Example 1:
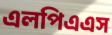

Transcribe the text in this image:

এলপিএএস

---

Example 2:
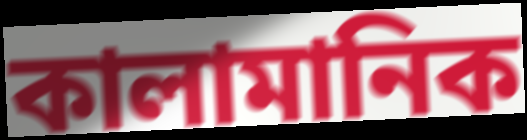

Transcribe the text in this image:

কালামানিক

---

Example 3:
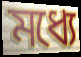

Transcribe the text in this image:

মধ্যে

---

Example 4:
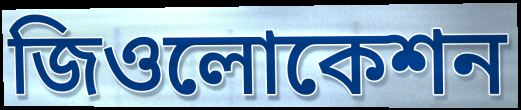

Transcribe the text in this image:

জিওলোকেশন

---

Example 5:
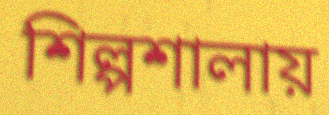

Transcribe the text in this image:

শিল্পশালায়